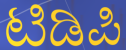
ಟಿಡಿಪಿ